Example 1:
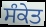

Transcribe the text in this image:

ਸੰਕੇਤ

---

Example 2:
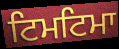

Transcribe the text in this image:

ਟਿਮਟਿਮਾ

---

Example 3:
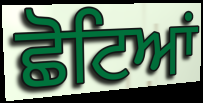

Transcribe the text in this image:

ਛੋਟਿਆਂ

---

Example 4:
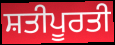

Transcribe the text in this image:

ਸ਼ਤੀਪੂਰਤੀ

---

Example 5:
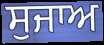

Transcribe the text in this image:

ਸੁਜਾਅ